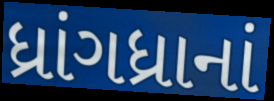
ધ્રાંગધ્રાનાં